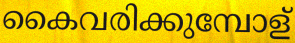
കൈവരിക്കുമ്പോള്